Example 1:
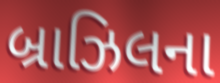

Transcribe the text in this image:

બ્રાઝિલના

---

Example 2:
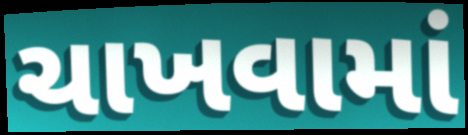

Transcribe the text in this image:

ચાખવામાં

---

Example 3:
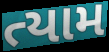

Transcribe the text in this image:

ત્યામ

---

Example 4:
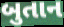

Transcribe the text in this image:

બુતાન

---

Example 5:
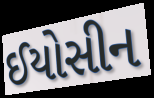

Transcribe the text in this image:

ઈયોસીન